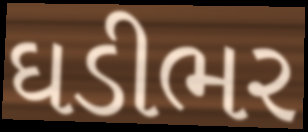
ઘડીભર